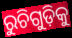
ରୁଚିଗୁଡ଼ିକୁ